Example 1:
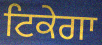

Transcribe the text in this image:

ਟਿਕੇਗਾ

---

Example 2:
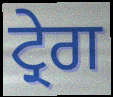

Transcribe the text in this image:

ਟ੍ਰੇਗ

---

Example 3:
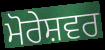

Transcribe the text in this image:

ਮੋਰੇਸ਼ਵਰ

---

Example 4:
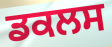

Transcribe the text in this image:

ਡਕਲਸ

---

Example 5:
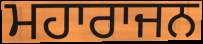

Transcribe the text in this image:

ਮਹਾਰਾਜਨ